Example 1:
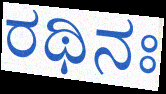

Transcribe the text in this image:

ರಥಿನಃ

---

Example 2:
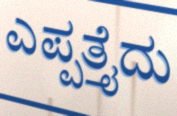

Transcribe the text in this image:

ಎಪ್ಪತ್ತೈದು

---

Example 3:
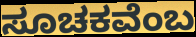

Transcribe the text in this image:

ಸೂಚಕವೆಂಬ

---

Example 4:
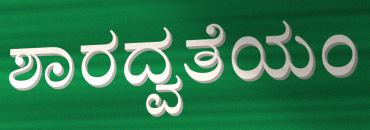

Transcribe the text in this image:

ಶಾರದ್ವತೆಯಂ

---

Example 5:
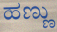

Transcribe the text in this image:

ಹಣ್ಣು